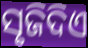
ସୃଜିଦିଏ